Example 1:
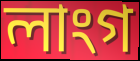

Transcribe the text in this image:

লাংগ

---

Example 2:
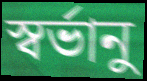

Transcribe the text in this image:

স্বর্ভানু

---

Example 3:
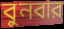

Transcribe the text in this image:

বুনবার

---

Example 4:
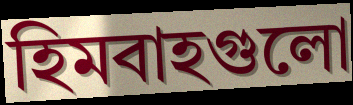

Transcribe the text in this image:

হিমবাহগুলো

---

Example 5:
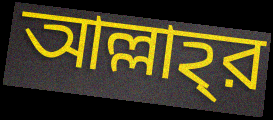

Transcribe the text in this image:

আল্লাহ্‌র